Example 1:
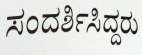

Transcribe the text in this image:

ಸಂದರ್ಶಿಸಿದ್ದರು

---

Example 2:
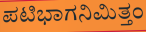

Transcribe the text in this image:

ಪಟಿಭಾಗನಿಮಿತ್ತಂ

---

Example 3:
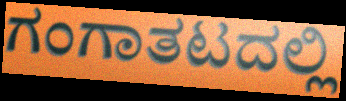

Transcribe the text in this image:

ಗಂಗಾತಟದಲ್ಲಿ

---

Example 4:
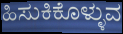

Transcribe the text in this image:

ಹಿಸುಕಿಕೊಳ್ಳುವ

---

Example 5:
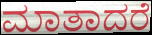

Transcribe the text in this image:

ಮಾತಾದರೆ